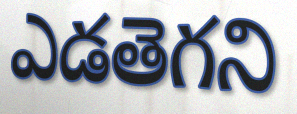
ఎడతెగని